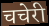
चचेरी